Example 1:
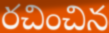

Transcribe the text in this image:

రచించిన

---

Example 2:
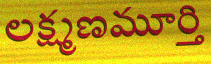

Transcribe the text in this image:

లక్ష్మణమూర్తి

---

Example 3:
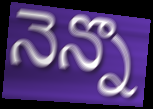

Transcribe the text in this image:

నెన్నొ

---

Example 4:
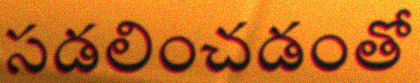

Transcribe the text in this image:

సడలించడంతో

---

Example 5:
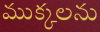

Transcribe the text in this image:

ముక్కలను